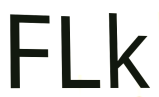
FLk